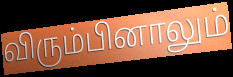
விரும்பினாலும்